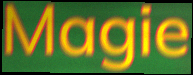
Magie